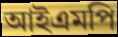
আইএমপি